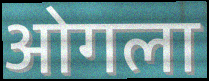
ओगला